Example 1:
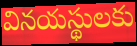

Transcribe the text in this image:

వినయస్థులకు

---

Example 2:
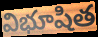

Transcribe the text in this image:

విభూషిత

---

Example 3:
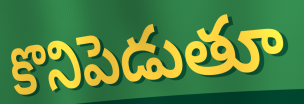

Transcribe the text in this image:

కొనిపెడుతూ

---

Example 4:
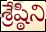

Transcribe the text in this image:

శ్రేష్ఠిని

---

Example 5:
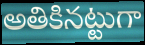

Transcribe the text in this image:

అతికినట్టుగా